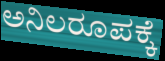
ಅನಿಲರೂಪಕ್ಕೆ